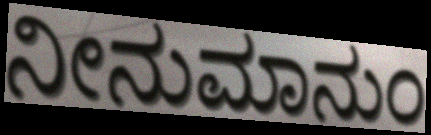
ನೀನುಮಾನುಂ